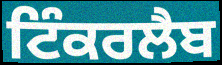
ਟਿੰਕਰਲੈਬ